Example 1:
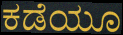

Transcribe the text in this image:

ಕಡೆಯೂ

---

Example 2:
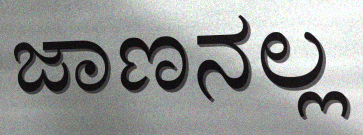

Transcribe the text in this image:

ಜಾಣನಲ್ಲ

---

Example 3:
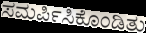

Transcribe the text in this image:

ಸಮರ್ಪಿಸಿಕೊಂಡಿತು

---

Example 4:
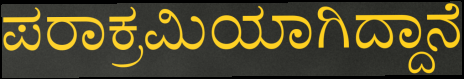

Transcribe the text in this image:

ಪರಾಕ್ರಮಿಯಾಗಿದ್ದಾನೆ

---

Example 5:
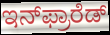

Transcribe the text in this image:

ಇನ್‌ಫ್ರಾರೆಡ್